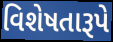
વિશેષતારૂપે